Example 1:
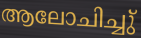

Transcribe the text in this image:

ആലോചിച്ചു്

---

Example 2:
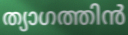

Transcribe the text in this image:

ത്യാഗത്തിൻ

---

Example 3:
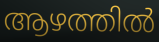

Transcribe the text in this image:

ആഴത്തിൽ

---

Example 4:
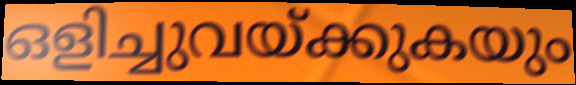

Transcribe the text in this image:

ഒളിച്ചുവയ്ക്കുകയും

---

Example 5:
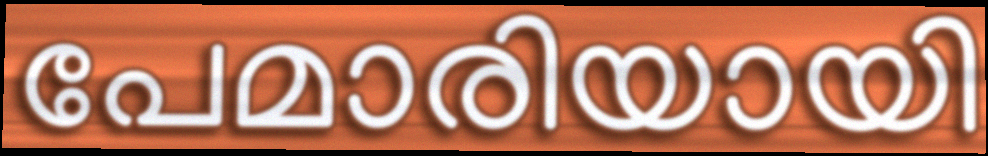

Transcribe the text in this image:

പേമാരിയായി